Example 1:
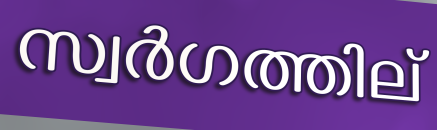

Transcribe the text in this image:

സ്വർഗത്തില്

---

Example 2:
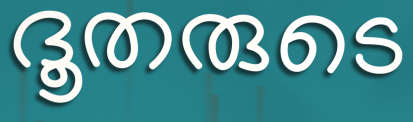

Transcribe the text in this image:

ദൂതരുടെ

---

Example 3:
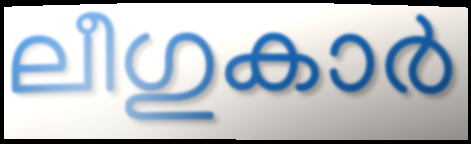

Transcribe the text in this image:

ലീഗുകാർ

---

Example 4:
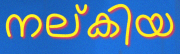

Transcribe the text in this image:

നല്കിയ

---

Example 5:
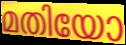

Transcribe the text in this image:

മതിയോ